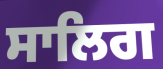
ਸਾਲਿਗ